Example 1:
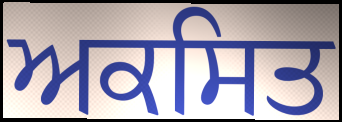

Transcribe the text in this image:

ਅਕਸਿਤ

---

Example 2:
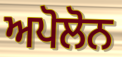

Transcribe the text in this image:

ਅਪੋਲੋਨ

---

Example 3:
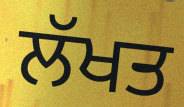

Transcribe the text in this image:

ਲੱਖਤ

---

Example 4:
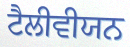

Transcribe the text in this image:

ਟੈਲੀਵੀਯਨ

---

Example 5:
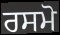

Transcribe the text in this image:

ਰਸਮੋ